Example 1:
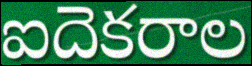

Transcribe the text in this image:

ఐదెకరాల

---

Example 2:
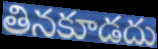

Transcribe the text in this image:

తినకూడదు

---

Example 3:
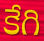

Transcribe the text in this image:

కేగి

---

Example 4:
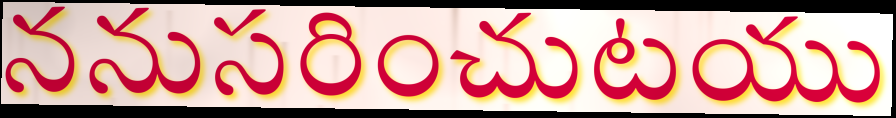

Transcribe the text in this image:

ననుసరించుటయు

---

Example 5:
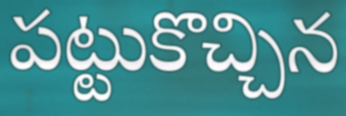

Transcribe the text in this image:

పట్టుకొచ్చిన